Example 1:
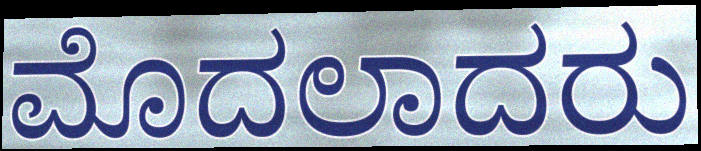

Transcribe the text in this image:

ಮೊದಲಾದರು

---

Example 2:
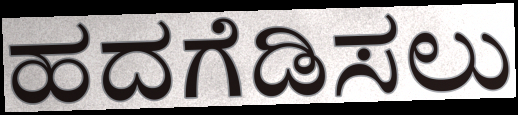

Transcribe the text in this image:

ಹದಗೆಡಿಸಲು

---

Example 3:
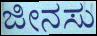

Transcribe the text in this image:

ಜೀನಸು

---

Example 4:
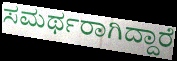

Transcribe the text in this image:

ಸಮರ್ಥರಾಗಿದ್ದಾರೆ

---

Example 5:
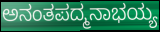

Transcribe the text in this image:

ಅನಂತಪದ್ಮನಾಭಯ್ಯ